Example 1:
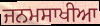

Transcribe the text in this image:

ਜਨਮਸਾਖੀਆ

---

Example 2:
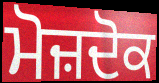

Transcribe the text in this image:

ਮੋਜ਼ਦੋਕ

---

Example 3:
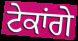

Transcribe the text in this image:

ਟੇਕਾਂਗੇ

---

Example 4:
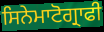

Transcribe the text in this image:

ਸਿਨੇਮਾਟੋਗ੍ਰਾਫੀ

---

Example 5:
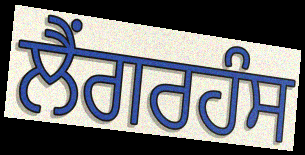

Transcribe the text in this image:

ਲੈਂਗਰਹੰਸ